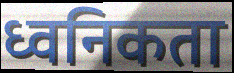
ध्वनिकता